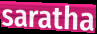
saratha